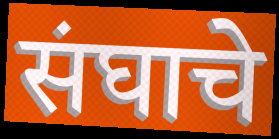
संघाचे